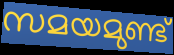
സമയമുണ്ട്